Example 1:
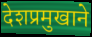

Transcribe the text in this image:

देशप्रमुखाने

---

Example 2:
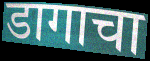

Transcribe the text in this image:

डागाचा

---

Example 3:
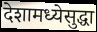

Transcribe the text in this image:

देशामध्येसुद्धा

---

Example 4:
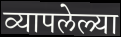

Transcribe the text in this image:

व्यापलेल्या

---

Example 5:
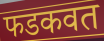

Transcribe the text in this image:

फडकवत